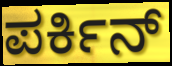
ಪರ್ಕಿನ್